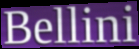
Bellini